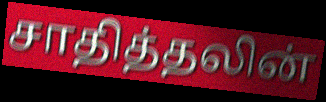
சாதித்தலின்